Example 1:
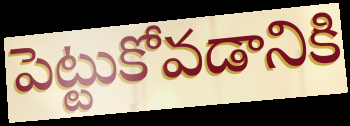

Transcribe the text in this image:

పెట్టుకోవడానికి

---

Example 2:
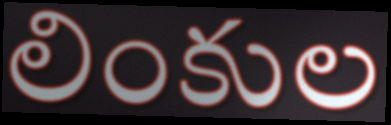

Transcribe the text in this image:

లింకుల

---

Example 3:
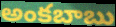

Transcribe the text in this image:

అంకబాబు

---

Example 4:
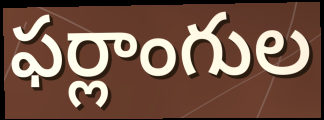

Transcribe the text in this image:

ఫర్లాంగుల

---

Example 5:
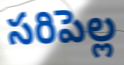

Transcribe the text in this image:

సరిపెల్ల